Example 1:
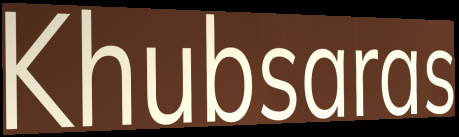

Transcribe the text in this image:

Khubsaras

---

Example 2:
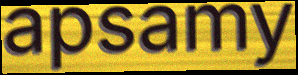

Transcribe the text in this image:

apsamy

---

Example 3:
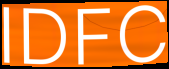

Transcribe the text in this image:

IDFC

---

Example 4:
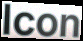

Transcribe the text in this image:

Icon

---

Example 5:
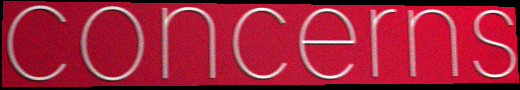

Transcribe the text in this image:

concerns